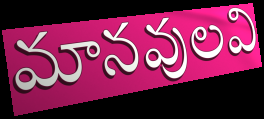
మానవులవి